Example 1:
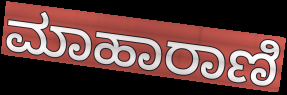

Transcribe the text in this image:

ಮಾಹಾರಾಣಿ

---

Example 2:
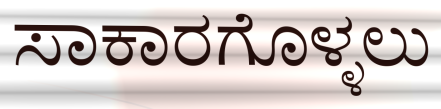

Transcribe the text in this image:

ಸಾಕಾರಗೊಳ್ಳಲು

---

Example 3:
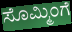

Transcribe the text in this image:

ಸೊಮ್ಮಿಂಗೆ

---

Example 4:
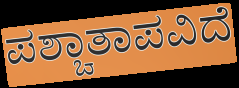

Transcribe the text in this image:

ಪಶ್ಚಾತಾಪವಿದೆ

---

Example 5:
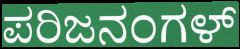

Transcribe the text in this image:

ಪರಿಜನಂಗಳ್